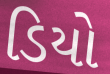
ડિયો